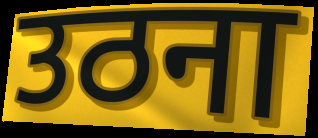
उठना